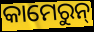
କାମେରୁନ୍